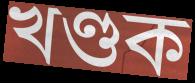
খণ্ডক